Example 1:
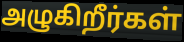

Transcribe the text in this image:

அழுகிறீர்கள்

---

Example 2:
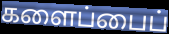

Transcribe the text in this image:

களைப்பைப்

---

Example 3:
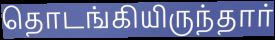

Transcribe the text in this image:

தொடங்கியிருந்தார்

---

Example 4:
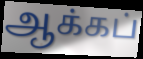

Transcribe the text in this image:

ஆக்கப்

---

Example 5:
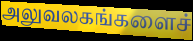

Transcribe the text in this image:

அலுவலகங்களைச்